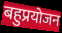
बहुप्रयोजन